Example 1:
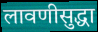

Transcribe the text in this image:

लावणीसुद्धा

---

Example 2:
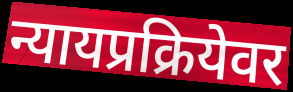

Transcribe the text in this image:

न्यायप्रक्रियेवर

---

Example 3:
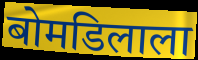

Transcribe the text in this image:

बोमडिलाला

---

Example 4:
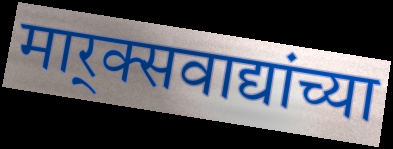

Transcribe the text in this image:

मार्क्सवाद्यांच्या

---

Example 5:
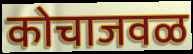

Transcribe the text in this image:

कोचाजवळ